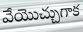
వేయొచ్చుగాక